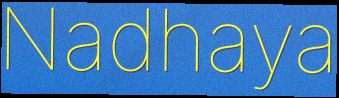
Nadhaya